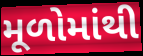
મૂળોમાંથી